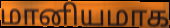
மானியமாக